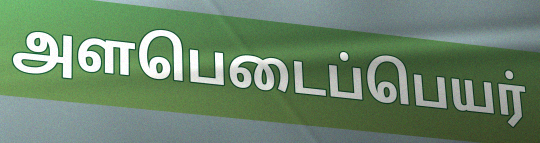
அளபெடைப்பெயர்